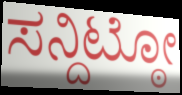
ಸನ್ದಿಟ್ಠೋ